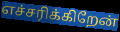
எச்சரிக்கிறேன்